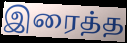
இரைத்த